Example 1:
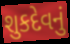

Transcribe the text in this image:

શુકદેવનું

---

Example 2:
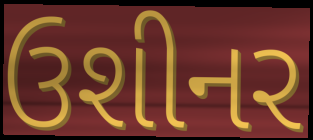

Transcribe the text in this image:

ઉશીનર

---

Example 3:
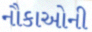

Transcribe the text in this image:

નૌકાઓની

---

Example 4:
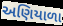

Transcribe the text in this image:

અણિયાળા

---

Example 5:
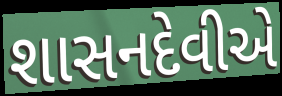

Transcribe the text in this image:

શાસનદેવીએ